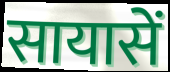
सायासें